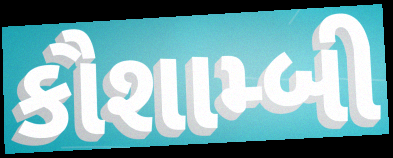
કૌશામ્બી